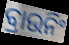
ବ୍ରାଉନିଂ